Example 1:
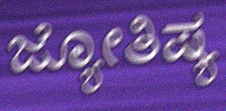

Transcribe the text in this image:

ಜ್ಯೋತಿಷ್ಯ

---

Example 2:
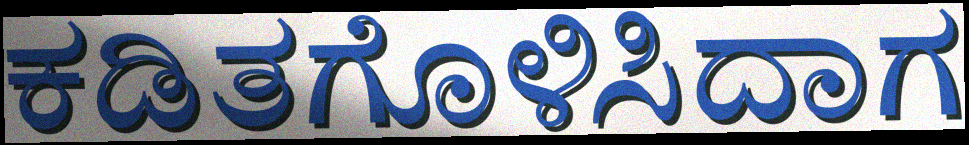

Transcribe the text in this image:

ಕಡಿತಗೊಳಿಸಿದಾಗ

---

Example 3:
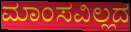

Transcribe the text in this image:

ಮಾಂಸವಿಲ್ಲದ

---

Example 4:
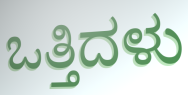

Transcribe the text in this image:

ಒತ್ತಿದಳು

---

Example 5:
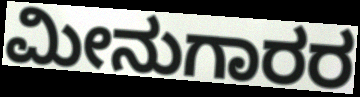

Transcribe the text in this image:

ಮೀನುಗಾರರ